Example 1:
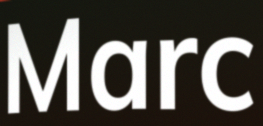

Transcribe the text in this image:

Marc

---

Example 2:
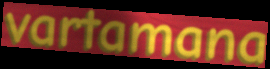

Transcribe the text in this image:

vartamana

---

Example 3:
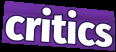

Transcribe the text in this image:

critics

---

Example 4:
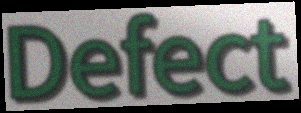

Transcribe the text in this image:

Defect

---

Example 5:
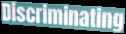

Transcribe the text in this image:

Discriminating